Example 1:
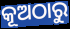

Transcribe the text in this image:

କୂଅଠାରୁ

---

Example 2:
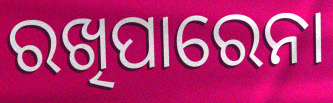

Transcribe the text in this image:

ରଖିପାରେନା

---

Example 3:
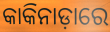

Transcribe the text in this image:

କାକିନାଡ଼ାରେ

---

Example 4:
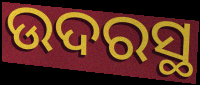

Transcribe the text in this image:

ଉଦରସ୍ଥ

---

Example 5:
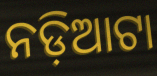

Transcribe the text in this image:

ନଡ଼ିଆଟା